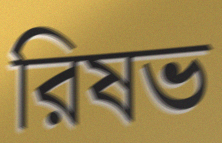
রিষভ